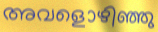
അവളൊഴിഞ്ഞു